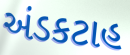
અંડકટાહ